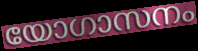
യോഗാസനം